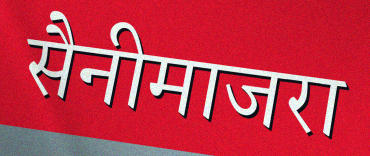
सैनीमाजरा